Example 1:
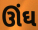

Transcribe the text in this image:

ઊંઘ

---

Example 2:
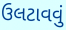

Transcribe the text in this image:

ઉલટાવવું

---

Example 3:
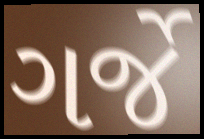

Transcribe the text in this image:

ગર્જે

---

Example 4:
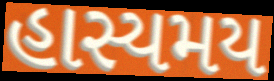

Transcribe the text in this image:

હાસ્યમય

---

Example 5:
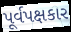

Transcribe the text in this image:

પૂર્વપક્ષકાર